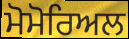
ਮੋਮੋਰਿਅਲ